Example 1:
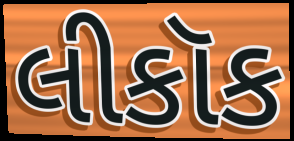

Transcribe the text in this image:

લીકૉક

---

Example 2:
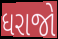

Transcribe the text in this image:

ધરાજો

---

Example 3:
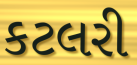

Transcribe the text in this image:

કટલરી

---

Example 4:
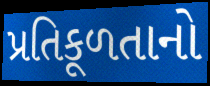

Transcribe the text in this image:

પ્રતિકૂળતાનો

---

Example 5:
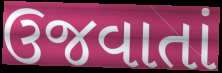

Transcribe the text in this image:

ઉજવાતાં